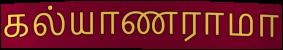
கல்யாணராமா